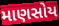
માણસોય